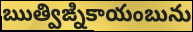
ఋత్విఙ్నికాయంబును